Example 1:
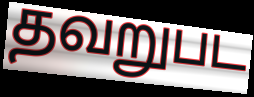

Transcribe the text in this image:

தவறுபட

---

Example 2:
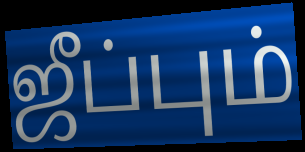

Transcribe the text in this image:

ஜீப்பும்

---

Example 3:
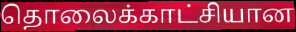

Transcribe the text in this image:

தொலைக்காட்சியான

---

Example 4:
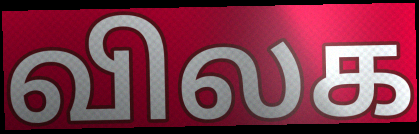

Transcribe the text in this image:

விலக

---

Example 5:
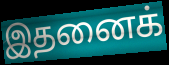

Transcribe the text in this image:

இதனைக்